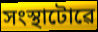
সংস্থাটোৱে